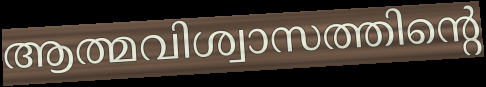
ആത്മവിശ്വാസത്തിന്റെ